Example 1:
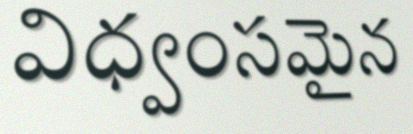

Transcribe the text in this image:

విధ్వంసమైన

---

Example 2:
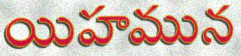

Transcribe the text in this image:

యిహమున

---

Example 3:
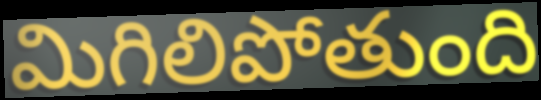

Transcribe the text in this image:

మిగిలిపోతుంది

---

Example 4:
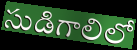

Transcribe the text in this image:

సుడిగాలిలో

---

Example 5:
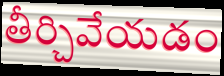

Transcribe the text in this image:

తీర్చివేయడం